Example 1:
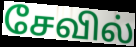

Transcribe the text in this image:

சேவில்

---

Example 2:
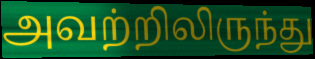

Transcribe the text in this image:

அவற்றிலிருந்து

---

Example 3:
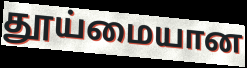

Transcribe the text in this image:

தூய்மையான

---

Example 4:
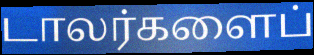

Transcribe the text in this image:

டாலர்களைப்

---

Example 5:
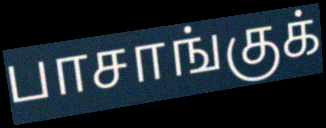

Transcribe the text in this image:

பாசாங்குக்